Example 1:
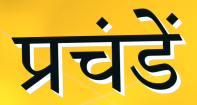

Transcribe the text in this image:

प्रचंडें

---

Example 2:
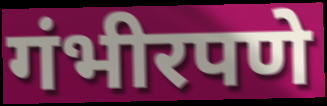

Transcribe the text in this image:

गंभीरपणे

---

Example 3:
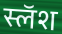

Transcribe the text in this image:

स्लॅश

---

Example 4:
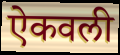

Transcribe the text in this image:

ऐकवली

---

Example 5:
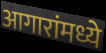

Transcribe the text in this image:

आगारांमध्ये